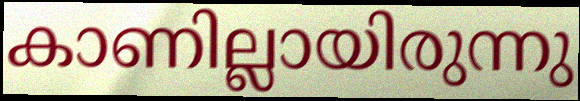
കാണില്ലായിരുന്നു